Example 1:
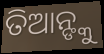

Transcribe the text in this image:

ତିଆନ୍ଙ୍କୁ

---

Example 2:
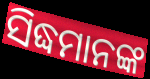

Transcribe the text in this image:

ସିଦ୍ଧମାନଙ୍କ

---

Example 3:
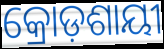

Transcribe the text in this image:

କ୍ରୋଡ଼ଶାୟୀ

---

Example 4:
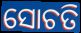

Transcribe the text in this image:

ସୋଚତି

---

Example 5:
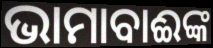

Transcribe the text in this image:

ଭାମାବାଈଙ୍କ